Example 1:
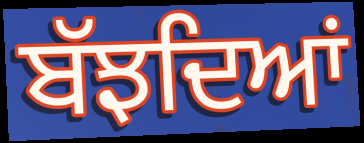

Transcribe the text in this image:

ਬੱਝਦਿਆਂ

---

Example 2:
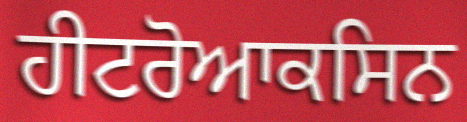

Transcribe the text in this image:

ਹੀਟਰੋਆਕਸਿਨ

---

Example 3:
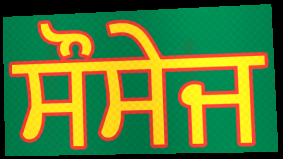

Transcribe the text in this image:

ਸੌਸੇਜ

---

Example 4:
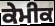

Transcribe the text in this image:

ਕੇਮੀਕ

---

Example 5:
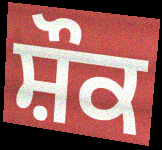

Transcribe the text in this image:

ਸ਼ੌਕ